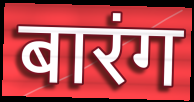
बारंग